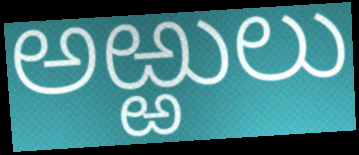
అఱ్ఱులు